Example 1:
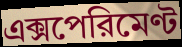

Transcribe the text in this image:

এক্সপেরিমেণ্ট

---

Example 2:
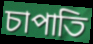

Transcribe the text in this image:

চাপাতি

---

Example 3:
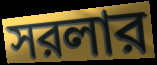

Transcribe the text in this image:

সরলার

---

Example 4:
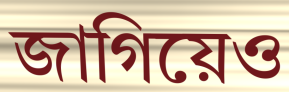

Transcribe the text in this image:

জাগিয়েও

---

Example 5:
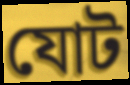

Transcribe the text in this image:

যোট